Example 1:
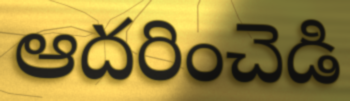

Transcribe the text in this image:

ఆదరించెడి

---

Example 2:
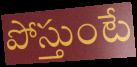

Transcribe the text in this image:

పోస్తుంటే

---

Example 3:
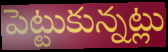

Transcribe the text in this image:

పెట్టుకున్నట్లు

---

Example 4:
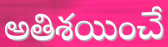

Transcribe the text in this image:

అతిశయించే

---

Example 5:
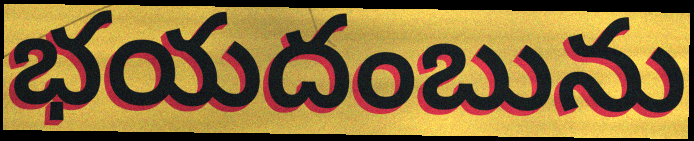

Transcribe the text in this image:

భయదంబును